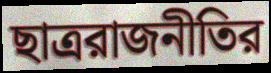
ছাত্ররাজনীতির